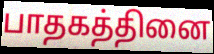
பாதகத்தினை